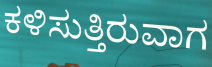
ಕಳಿಸುತ್ತಿರುವಾಗ